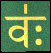
वः॑